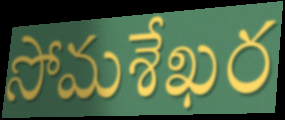
సోమశేఖర